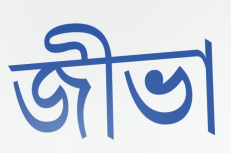
জীভা